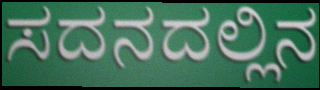
ಸದನದಲ್ಲಿನ